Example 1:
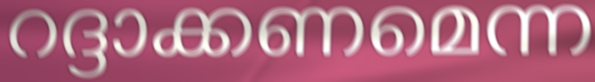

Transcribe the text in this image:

റദ്ദാക്കണമെന്ന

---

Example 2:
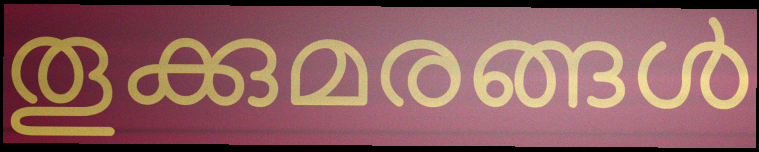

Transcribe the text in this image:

തൂക്കുമരങ്ങൾ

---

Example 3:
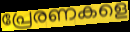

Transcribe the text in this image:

പ്രേരണകളെ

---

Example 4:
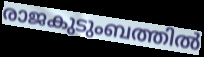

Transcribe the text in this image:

രാജകുടുംബത്തിൽ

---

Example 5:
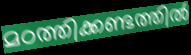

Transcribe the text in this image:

മഠത്തിക്കണ്ടത്തിൽ